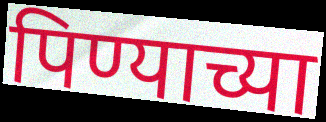
पिण्याच्या